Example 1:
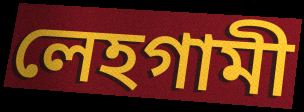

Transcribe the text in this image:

লেহগামী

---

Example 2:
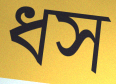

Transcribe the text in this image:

ধস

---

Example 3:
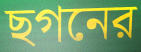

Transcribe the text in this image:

ছগনের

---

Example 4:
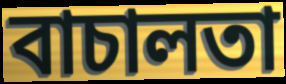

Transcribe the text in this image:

বাচালতা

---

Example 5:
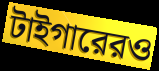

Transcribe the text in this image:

টাইগারেরও